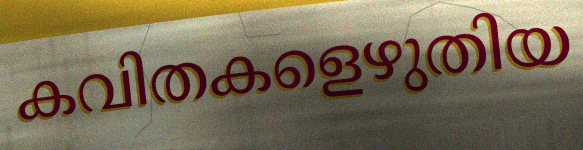
കവിതകളെഴുതിയ